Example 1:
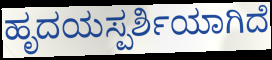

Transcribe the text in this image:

ಹೃದಯಸ್ಪರ್ಶಿಯಾಗಿದೆ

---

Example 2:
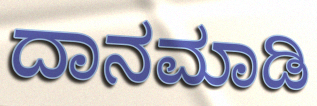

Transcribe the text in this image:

ದಾನಮಾಡಿ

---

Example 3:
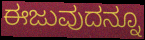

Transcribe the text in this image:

ಈಜುವುದನ್ನೂ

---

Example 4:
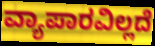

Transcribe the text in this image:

ವ್ಯಾಪಾರವಿಲ್ಲದೆ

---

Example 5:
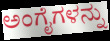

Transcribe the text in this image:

ಅಂಗೈಗಳನ್ನು